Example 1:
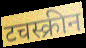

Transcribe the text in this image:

टचस्क्रीन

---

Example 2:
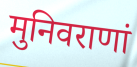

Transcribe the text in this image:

मुनिवराणां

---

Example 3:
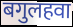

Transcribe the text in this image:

बगुलहवा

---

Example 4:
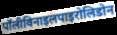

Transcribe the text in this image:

पॉलीविनाइलपाइरोलिडोन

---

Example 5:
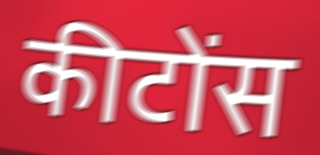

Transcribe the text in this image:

कीटोंस